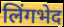
लिंगभेद